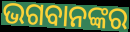
ଭଗବାନଙ୍କର